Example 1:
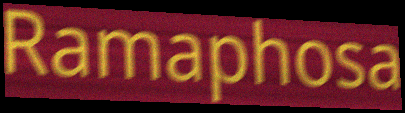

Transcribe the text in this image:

Ramaphosa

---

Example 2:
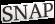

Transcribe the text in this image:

SNAP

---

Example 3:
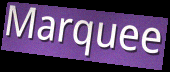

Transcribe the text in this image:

Marquee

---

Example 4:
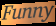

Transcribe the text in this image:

Funny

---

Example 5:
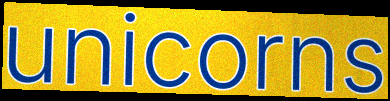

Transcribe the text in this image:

unicorns